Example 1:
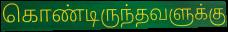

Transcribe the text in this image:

கொண்டிருந்தவளுக்கு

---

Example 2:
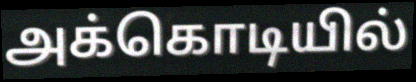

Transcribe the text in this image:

அக்கொடியில்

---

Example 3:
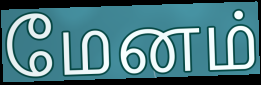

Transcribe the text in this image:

மேனம்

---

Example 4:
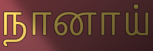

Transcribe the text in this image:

நானாய்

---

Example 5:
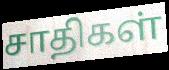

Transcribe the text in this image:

சாதிகள்